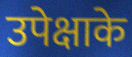
उपेक्षाके